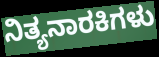
ನಿತ್ಯನಾರಕಿಗಳು